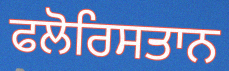
ਫਲੋਰਿਸਤਾਨ